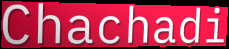
Chachadi